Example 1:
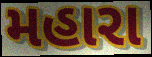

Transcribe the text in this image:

મહારા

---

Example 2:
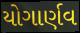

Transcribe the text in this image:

યોગાર્ણવ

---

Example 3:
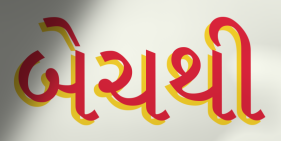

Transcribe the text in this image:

બેચથી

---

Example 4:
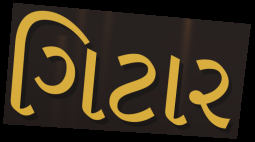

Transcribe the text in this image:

ગિટાર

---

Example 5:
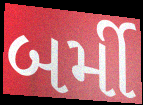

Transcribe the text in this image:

બર્મી